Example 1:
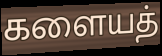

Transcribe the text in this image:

களையத்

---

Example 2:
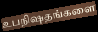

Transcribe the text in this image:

உபநிஷதங்களை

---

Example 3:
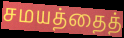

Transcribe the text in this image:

சமயத்தைத்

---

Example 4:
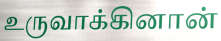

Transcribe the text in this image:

உருவாக்கினான்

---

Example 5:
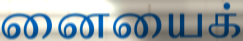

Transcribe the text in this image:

னையைக்